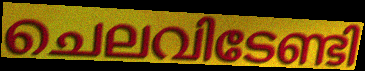
ചെലവിടേണ്ടി